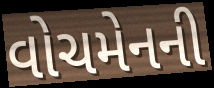
વોચમેનની